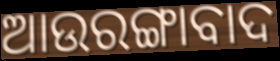
ଆଉରଙ୍ଗାବାଦ